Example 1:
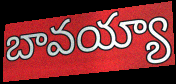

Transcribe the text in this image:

బావయ్యా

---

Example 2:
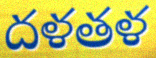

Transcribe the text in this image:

దళతళ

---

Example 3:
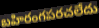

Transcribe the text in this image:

బహిరంగపరచలేదు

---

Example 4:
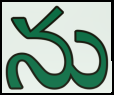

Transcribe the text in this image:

ను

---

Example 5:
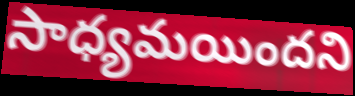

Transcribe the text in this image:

సాధ్యమయిందని